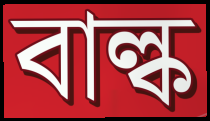
বাল্ক